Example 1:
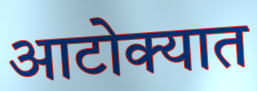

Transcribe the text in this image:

आटोक्‍यात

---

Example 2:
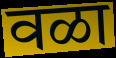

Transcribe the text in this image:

वळा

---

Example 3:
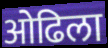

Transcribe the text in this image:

ओढिला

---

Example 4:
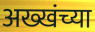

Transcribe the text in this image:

अख्खंच्या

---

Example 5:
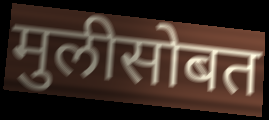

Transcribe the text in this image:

मुलीसोबत